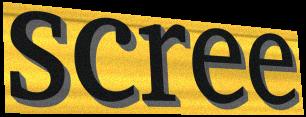
scree